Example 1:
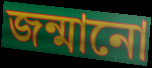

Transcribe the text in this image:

জন্মানো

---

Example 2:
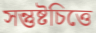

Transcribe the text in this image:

সন্তুষ্টচিত্তে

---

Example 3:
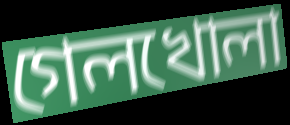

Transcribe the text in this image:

গেলখোলা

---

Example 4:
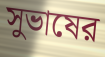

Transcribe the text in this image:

সুভাষের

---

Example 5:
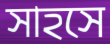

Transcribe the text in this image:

সাহসে